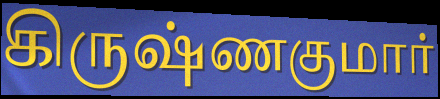
கிருஷ்ணகுமார்